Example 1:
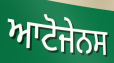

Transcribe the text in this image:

ਆਟੋਜੇਨਸ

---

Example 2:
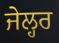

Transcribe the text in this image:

ਜੇਲ੍ਹਰ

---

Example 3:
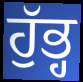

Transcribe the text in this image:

ਹੁੱਭ੍ਹ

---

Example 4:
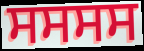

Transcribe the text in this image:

ਸਸਸਸ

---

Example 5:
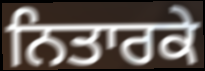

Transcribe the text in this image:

ਨਿਤਾਰਕੇ